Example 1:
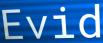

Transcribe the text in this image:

Evid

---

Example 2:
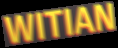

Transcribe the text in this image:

WITIAN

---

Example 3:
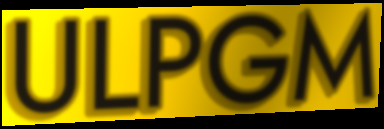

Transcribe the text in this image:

ULPGM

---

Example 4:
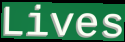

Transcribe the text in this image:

Lives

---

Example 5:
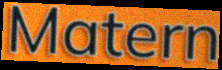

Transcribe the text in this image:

Matern